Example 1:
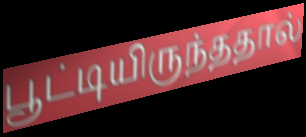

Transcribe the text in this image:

பூட்டியிருந்ததால்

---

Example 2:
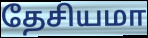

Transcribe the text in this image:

தேசியமா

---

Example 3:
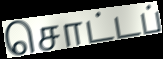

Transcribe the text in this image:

சொட்டப்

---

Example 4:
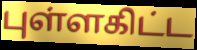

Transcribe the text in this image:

புள்ளகிட்ட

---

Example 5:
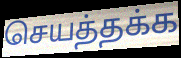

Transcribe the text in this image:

செயத்தக்க